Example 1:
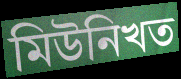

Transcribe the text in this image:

মিউনিখত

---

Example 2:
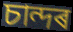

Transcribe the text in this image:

চান্দৰ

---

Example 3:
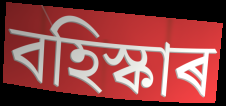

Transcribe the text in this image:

বহিস্কাৰ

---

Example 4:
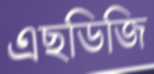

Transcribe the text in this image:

এছডিজি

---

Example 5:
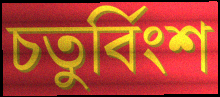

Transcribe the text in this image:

চতুৰ্বিংশ